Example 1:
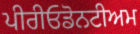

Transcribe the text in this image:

ਪੀਰੀਓਡੋਨਟੀਅਮ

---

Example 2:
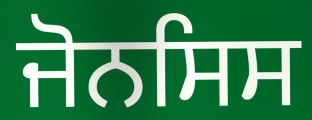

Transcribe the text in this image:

ਜੋਨਸਿਸ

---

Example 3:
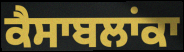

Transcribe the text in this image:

ਕੈਸਾਬਲਾਂਕਾ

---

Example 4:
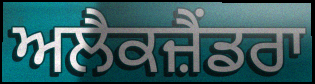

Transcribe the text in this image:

ਅਲੈਕਜ਼ੈਂਡਰਾ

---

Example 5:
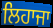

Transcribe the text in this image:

ਲਿਹਾਜਾ